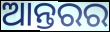
ଆନ୍ତରର